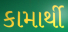
કામાર્થી